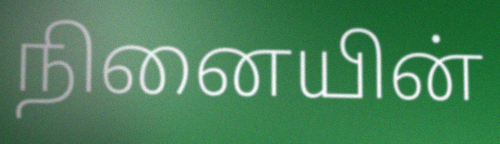
நினையின்